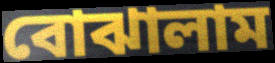
বোঝালাম